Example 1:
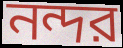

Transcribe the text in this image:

নন্দর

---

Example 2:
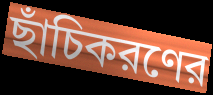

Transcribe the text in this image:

ছাঁচিকরণের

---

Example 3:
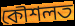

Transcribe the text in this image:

কৌশলত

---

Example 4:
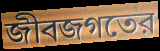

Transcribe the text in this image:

জীবজগতের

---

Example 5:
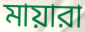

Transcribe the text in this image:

মায়ারা